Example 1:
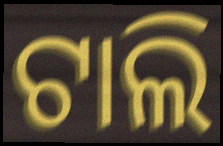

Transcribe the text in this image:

ଟାଲି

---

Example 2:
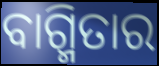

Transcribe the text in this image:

ବାଗ୍ମିତାର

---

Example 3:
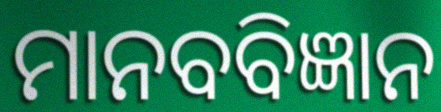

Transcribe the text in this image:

ମାନବବିଜ୍ଞାନ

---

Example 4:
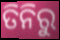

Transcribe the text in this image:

ତିନିରୁ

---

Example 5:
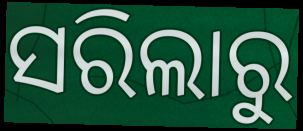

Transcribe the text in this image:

ସରିଲାରୁ